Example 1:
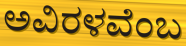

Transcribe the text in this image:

ಅವಿರಳವೆಂಬ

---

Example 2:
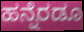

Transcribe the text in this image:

ಹನ್ನೆರಡೂ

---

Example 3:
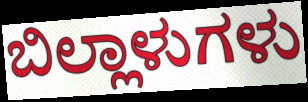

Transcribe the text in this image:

ಬಿಲ್ಲಾಳುಗಳು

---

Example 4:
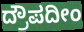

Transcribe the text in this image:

ದ್ರೌಪದೀಂ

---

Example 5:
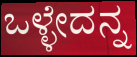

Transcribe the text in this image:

ಒಳ್ಳೇದನ್ನ